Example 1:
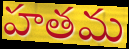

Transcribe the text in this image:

హతమ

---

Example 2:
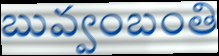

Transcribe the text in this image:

బువ్వంబంతి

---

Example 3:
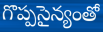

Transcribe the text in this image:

గొప్పసైన్యంతో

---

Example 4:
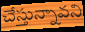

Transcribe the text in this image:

చేస్తున్నావని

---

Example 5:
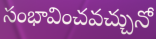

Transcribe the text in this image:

సంభావించవచ్చునో